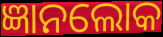
ଜ୍ଞାନଲୋକ